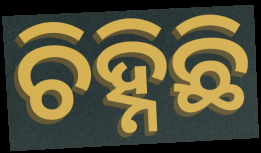
ଚିହ୍ନିଛି